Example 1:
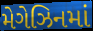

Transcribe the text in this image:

મેગેઝિનમાં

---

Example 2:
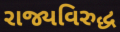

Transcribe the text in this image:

રાજ્યવિરુદ્ધ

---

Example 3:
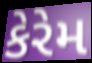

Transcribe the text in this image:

કેરેમ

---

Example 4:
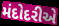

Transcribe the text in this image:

મંદોદરીએ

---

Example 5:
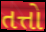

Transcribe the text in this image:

તત્તો